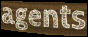
agents